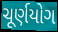
ચૂર્ણયોગ